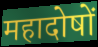
महादोषों